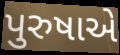
પુરુષાએ